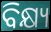
ବିକ୍ଷ୍ଯ